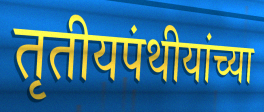
तृतीयपंथीयांच्या